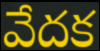
వేదక